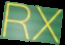
RX